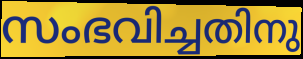
സംഭവിച്ചതിനു